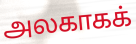
அலகாகக்